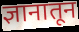
ज्ञानातून